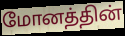
மோனத்தின்